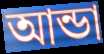
আন্ডা